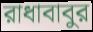
রাধাবাবুর